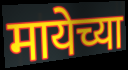
मायेच्या